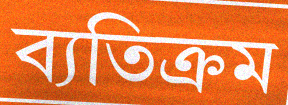
ব্যতিক্ৰম